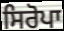
ਸਿਰੋਪਾ